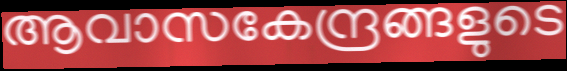
ആവാസകേന്ദ്രങ്ങളുടെ